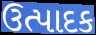
ઉત્પાદક